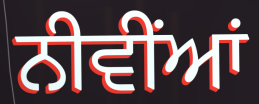
ਨੀਵੀਂਆਂ